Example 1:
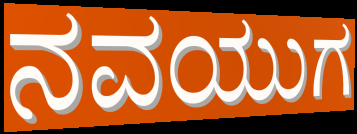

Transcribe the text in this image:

ನವಯುಗ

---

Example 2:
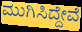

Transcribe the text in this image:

ಮುಗಿಸಿದ್ದೇವೆ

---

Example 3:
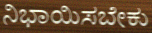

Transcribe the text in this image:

ನಿಭಾಯಿಸಬೇಕು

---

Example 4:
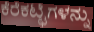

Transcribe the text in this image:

ಕೆರೆಕಟ್ಟೆಗಳನ್ನು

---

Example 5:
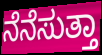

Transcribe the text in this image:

ನೆನೆಸುತ್ತಾ